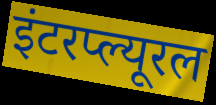
इंटरप्ल्यूरल